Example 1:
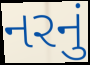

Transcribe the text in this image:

નરનું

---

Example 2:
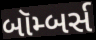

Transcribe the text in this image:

બૉમ્બર્સ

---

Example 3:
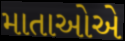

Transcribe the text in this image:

માતાઓએ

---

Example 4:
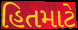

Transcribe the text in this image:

હિતમાટે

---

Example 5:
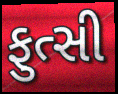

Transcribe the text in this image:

ફુત્સી